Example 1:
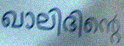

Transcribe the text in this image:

ഖാലിദിന്റെ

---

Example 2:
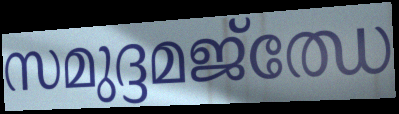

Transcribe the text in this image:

സമുദ്ദമജ്ഝേ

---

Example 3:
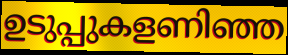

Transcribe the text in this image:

ഉടുപ്പുകളണിഞ്ഞ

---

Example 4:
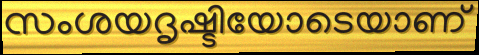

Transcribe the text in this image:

സംശയദൃഷ്ടിയോടെയാണ്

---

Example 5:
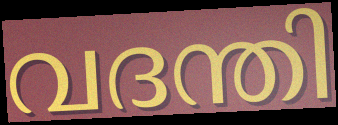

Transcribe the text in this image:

വദന്തി